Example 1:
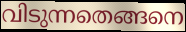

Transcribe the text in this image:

വിടുന്നതെങ്ങനെ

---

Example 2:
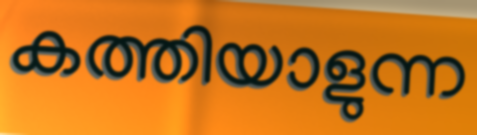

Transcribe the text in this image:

കത്തിയാളുന്ന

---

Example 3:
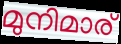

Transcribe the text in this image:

മുനിമാര്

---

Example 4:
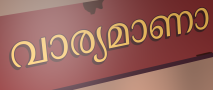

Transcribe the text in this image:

വാര്യമാണാ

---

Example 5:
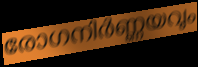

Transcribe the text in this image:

രോഗനിർണ്ണയവും